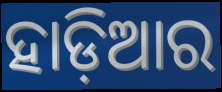
ହାଡ଼ିଆର